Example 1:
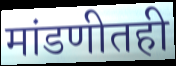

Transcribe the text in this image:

मांडणीतही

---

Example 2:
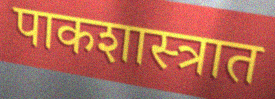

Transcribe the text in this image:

पाकशास्त्रात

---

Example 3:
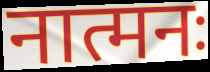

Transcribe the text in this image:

नात्मनः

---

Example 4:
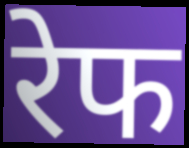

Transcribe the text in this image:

रेफ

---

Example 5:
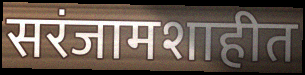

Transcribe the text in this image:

सरंजामशाहीत